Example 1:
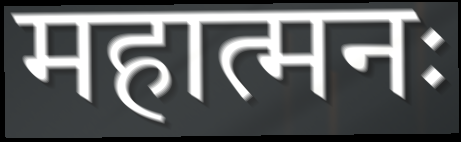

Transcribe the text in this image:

महात्मनः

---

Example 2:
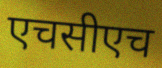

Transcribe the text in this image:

एचसीएच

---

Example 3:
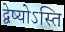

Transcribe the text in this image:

द्वेष्योऽस्ति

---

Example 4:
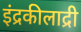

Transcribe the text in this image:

इंद्रकीलाद्री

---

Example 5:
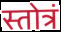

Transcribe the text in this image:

स्तोत्रं